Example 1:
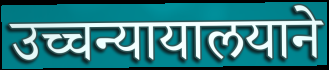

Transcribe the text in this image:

उच्चन्यायालयाने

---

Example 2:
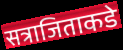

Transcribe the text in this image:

सत्राजिताकडे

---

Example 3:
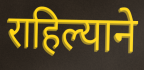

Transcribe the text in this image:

राहिल्याने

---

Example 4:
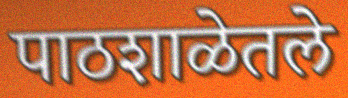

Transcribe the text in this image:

पाठशाळेतले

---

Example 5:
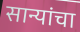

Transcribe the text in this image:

सान्यांचा